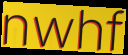
nwhf